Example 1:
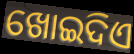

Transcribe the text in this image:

ଖୋଇଦିଏ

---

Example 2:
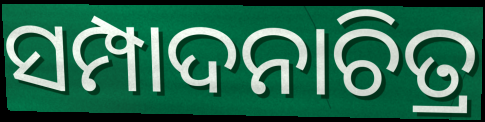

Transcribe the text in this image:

ସମ୍ପାଦନାଚିତ୍ର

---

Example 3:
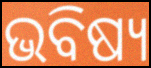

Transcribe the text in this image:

ଭବିଷ୍ଯ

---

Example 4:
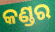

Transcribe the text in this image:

କଣ୍ଡର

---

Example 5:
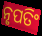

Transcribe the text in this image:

ନୃପତିଂ